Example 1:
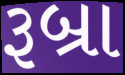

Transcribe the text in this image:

રૂબ્રા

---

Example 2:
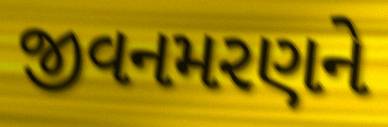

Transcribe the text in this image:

જીવનમરણને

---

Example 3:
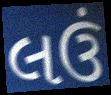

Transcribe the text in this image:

લઉં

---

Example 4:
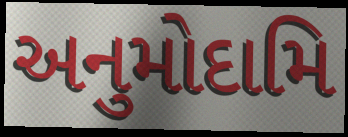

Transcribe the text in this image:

અનુમોદામિ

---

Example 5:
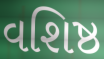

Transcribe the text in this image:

વશિષ્ઠ